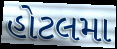
હોટલમા